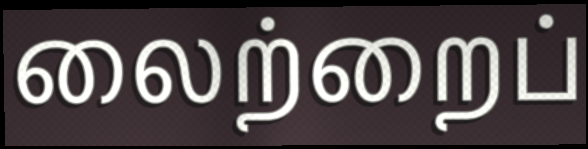
லைற்றைப்